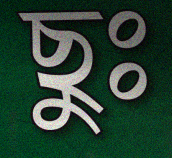
ছুঃ